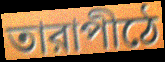
তারাপীঠে